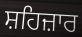
ਸ਼ਹਿਜ਼ਾਰ